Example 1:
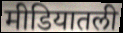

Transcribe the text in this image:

मीडियातली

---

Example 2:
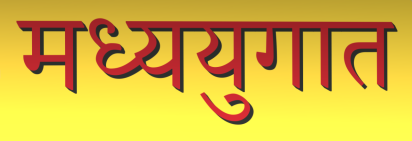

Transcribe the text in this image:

मध्ययुगात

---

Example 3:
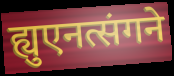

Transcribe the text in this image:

ह्युएनत्संगने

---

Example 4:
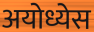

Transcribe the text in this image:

अयोध्येस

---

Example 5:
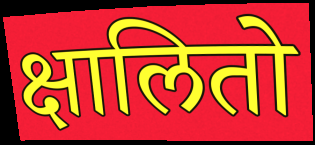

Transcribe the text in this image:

क्षालितो